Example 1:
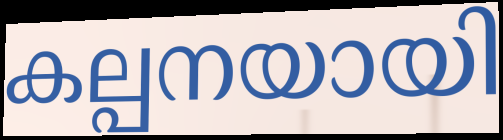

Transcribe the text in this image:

കല്പനയായി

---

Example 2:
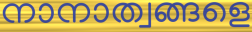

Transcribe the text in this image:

നാനാത്വങ്ങളെ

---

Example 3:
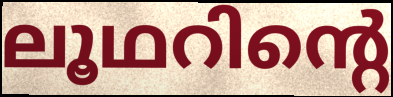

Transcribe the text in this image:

ലൂഥറിന്റെ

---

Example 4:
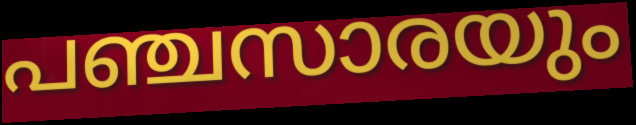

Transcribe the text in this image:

പഞ്ചസാരയും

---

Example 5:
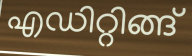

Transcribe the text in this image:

എഡിറ്റിങ്ങ്